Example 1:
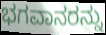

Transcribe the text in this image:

ಭಗವಾನರನ್ನು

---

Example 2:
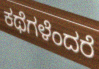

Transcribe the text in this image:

ಕಥೆಗಳೆಂದರೆ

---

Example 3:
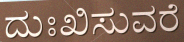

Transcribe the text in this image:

ದುಃಖಿಸುವರೆ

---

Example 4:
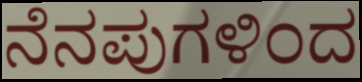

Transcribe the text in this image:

ನೆನಪುಗಳಿಂದ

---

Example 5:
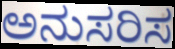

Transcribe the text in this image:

ಅನುಸರಿಸ